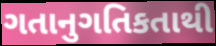
ગતાનુગતિકતાથી